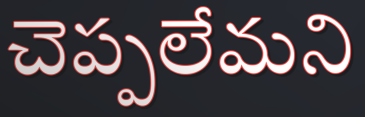
చెప్పలేమని